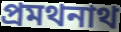
প্রমথনাথ